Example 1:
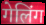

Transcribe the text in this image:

गेलिंग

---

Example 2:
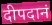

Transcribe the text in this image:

दीपदानं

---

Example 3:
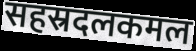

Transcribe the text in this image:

सहस्रदलकमल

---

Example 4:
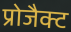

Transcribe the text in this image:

प्रोजैक्ट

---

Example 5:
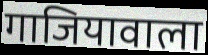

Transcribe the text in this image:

गाजियावाला